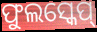
ଫୁଲସ୍କେପ୍